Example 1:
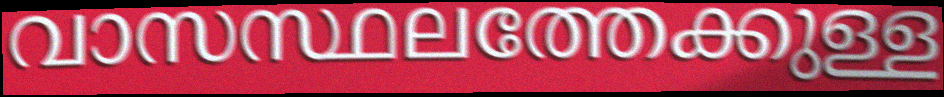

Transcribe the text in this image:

വാസസ്ഥലത്തേക്കുള്ള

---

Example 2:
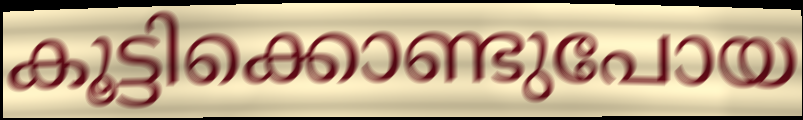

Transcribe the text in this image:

കൂട്ടിക്കൊണ്ടുപോയ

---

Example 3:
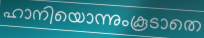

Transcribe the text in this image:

ഹാനിയൊന്നുംകൂടാതെ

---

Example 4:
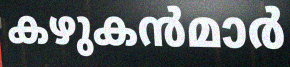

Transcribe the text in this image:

കഴുകൻമാർ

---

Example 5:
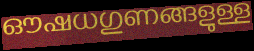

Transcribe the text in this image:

ഔഷധഗുണങ്ങളുള്ള